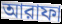
আরাফা